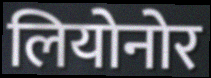
लियोनोर